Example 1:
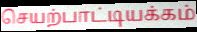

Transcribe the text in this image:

செயற்பாட்டியக்கம்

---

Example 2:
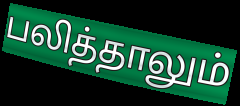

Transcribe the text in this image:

பலித்தாலும்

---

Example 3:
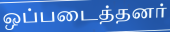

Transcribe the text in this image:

ஒப்படைத்தனர்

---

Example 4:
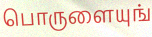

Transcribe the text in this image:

பொருளையுங்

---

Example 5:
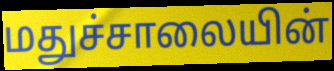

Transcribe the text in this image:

மதுச்சாலையின்